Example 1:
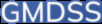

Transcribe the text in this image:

GMDSS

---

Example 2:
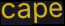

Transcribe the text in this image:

cape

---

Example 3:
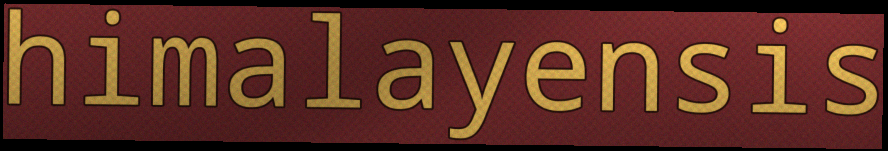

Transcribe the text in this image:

himalayensis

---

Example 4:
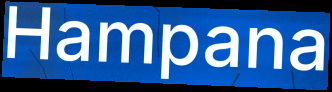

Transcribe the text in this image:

Hampana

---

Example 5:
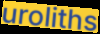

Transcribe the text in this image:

uroliths